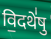
वि॒दथे॑षु